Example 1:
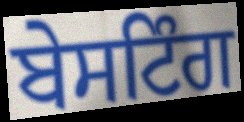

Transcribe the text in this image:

ਬੇਸਟਿੰਗ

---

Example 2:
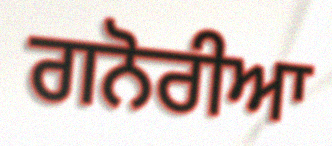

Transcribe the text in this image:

ਗਨੋਰੀਆ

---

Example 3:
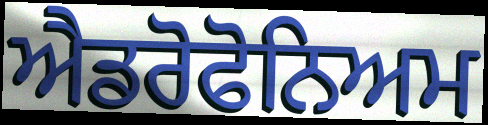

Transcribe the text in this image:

ਐਡਰੋਫੋਨਿਅਮ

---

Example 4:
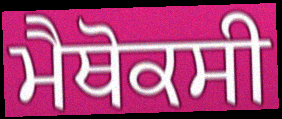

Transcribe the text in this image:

ਮੈਥੋਕਸੀ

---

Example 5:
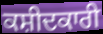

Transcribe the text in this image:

ਕਸ਼ੀਦਕਾਰੀ